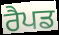
ਰੈਪਡ